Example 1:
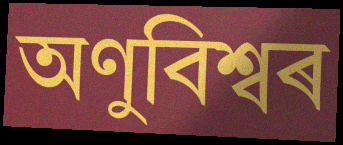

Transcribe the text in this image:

অণুবিশ্বৰ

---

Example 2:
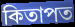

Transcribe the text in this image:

কিতাপত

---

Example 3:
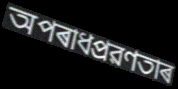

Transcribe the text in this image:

অপৰাধপ্ৰৱণতাৰ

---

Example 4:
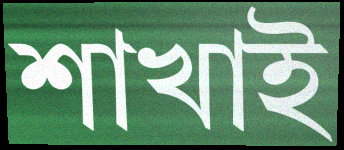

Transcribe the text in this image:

শাখাই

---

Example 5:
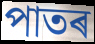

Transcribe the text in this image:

পাতৰ